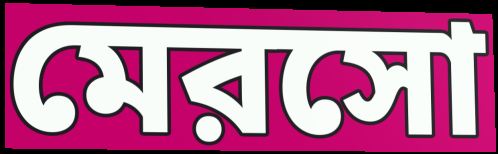
মেরসো